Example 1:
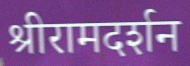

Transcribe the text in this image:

श्रीरामदर्शन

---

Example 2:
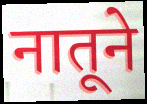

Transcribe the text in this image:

नातूने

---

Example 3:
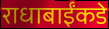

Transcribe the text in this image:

राधाबाईंकडे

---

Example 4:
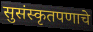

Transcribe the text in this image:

सुसंस्कृतपणाचे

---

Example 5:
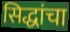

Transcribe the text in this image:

सिद्धांचा